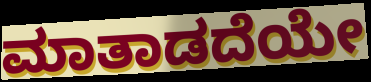
ಮಾತಾಡದೆಯೇ